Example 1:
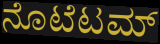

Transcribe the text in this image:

ನೊಟೆಟಮ್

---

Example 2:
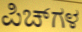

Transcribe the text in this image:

ಪಿಚ್‌ಗಳ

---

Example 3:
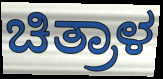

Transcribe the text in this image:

ಚಿತ್ರಾಳ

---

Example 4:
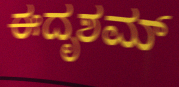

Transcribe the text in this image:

ಈದೃಶಮ್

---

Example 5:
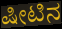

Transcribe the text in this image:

ಷೀಟಿನ